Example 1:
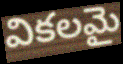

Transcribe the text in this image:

వికలమై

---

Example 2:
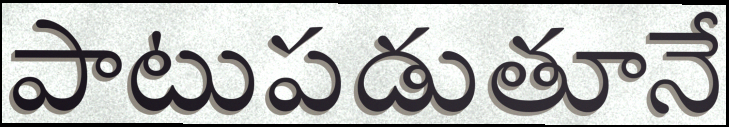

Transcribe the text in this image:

పాటుపడుతూనే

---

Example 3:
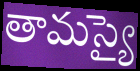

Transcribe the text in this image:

తామస్యై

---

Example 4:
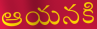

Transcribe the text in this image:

ఆయనకి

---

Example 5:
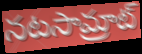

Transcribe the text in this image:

నటసామ్రాట్